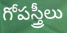
గోపస్త్రీలు